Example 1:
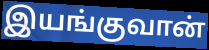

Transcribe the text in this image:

இயங்குவான்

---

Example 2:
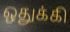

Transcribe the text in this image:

ஒதுக்கி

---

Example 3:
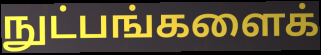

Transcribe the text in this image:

நுட்பங்களைக்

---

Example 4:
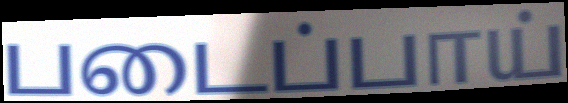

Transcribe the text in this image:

படைப்பாய்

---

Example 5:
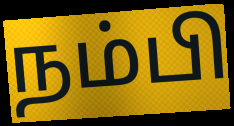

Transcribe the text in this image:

நம்பி